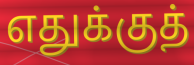
எதுக்குத்